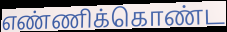
எண்ணிக்கொண்ட